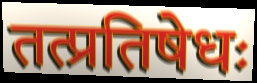
तत्प्रतिषेधः